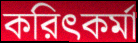
করিৎকর্মা